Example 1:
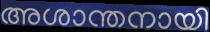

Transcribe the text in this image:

അശാന്തനായി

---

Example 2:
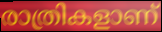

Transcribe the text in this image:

രാത്രികളാണ്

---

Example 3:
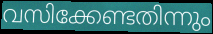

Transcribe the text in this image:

വസിക്കേണ്ടതിന്നും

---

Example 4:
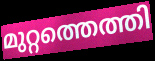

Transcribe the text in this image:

മുറ്റത്തെത്തി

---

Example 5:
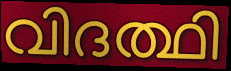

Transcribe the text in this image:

വിദത്ഥി